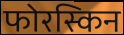
फोरस्किन